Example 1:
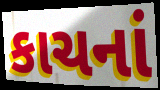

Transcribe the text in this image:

કાચનાં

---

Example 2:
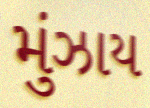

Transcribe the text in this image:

મુંઝાય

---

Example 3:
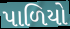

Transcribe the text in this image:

પાળિયો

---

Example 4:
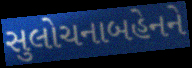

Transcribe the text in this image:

સુલોચનાબહેનને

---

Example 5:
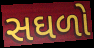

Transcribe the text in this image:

સઘળો